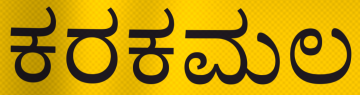
ಕರಕಮಲ